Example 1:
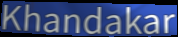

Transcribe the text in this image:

Khandakar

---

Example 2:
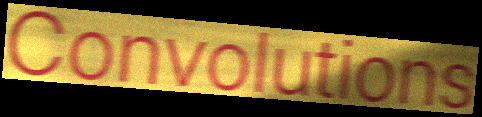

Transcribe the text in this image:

Convolutions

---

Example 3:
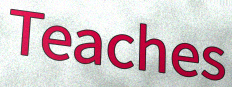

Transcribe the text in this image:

Teaches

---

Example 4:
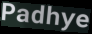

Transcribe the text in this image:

Padhye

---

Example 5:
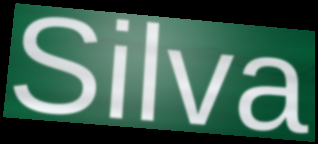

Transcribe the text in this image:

Silva